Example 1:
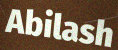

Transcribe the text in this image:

Abilash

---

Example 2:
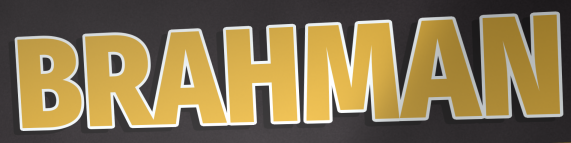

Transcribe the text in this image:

BRAHMAN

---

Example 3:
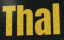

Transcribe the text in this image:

Thal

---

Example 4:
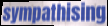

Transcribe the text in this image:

sympathising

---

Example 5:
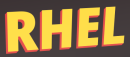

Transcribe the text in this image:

RHEL